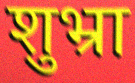
शुभ्रा